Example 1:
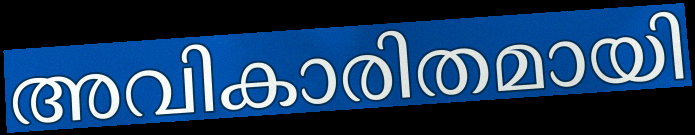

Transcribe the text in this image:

അവികാരിതമായി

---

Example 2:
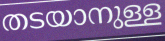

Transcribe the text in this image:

തടയാനുള്ള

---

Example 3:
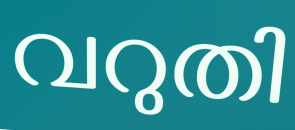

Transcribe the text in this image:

വറുതി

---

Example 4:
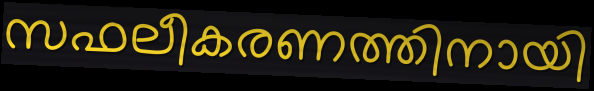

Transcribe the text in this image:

സഫലീകരണത്തിനായി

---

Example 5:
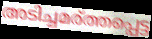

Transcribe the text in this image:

അടിച്ചമര്ത്തപ്പെട്ട